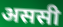
अससी